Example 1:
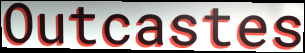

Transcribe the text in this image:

Outcastes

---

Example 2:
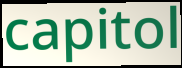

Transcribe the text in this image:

capitol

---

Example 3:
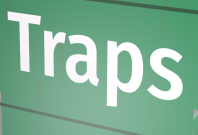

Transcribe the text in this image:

Traps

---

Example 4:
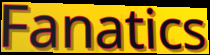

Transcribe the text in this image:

Fanatics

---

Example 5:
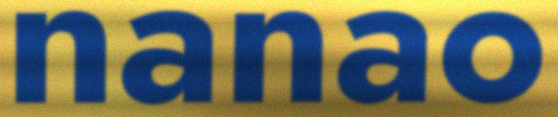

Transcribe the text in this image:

nanao